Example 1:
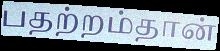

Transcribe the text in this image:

பதற்றம்தான்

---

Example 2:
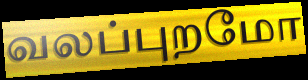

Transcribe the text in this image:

வலப்புறமோ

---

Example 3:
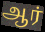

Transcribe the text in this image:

ஆர்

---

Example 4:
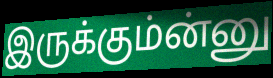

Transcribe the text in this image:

இருக்கும்ன்னு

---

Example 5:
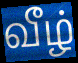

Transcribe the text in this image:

வீழ்